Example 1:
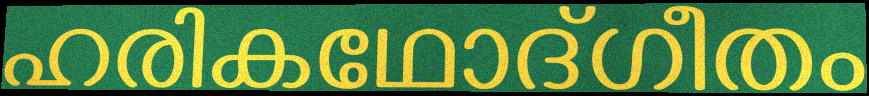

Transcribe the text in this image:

ഹരികഥോദ്ഗീതം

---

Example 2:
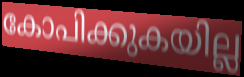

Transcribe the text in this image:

കോപിക്കുകയില്ല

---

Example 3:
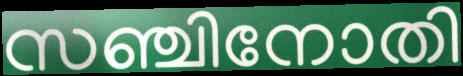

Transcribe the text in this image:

സഞ്ചിനോതി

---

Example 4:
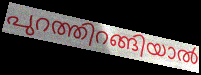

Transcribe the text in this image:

പുറത്തിറങ്ങിയാൽ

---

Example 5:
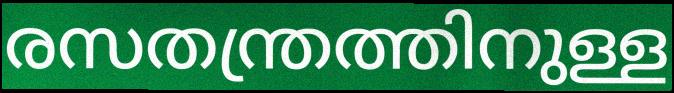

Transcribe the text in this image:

രസതന്ത്രത്തിനുള്ള